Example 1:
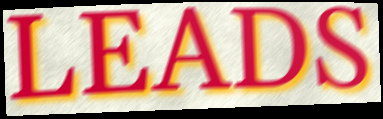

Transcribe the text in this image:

LEADS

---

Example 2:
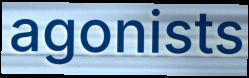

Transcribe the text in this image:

agonists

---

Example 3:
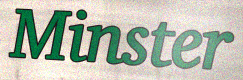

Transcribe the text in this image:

Minster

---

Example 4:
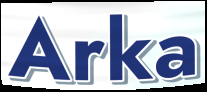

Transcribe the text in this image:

Arka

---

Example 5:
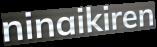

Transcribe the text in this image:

ninaikiren